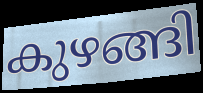
കുഴങ്ങി